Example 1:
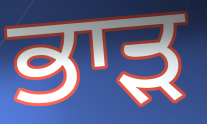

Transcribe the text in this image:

ਭਾੜ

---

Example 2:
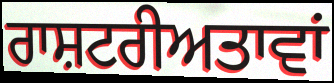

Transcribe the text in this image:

ਰਾਸ਼ਟਰੀਅਤਾਵਾਂ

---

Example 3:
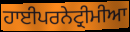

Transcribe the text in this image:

ਹਾਈਪਰਨੇਟ੍ਰੀਮੀਆ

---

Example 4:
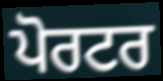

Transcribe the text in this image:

ਪੋਰਟਰ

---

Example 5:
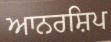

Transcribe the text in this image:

ਆਨਰਸ਼ਿਪ